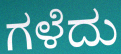
ಗಳೆದು